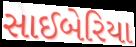
સાઈબેરિયા